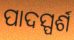
ପାଦସ୍ପର୍ଶ